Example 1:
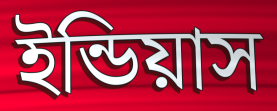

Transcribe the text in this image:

ইন্ডিয়াস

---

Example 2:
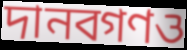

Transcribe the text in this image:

দানবগণও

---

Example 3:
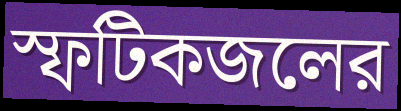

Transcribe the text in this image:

স্ফটিকজলের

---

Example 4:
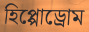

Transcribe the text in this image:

হিপ্পোড্রোম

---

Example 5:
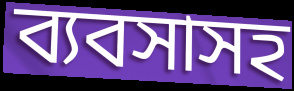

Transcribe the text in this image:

ব্যবসাসহ